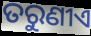
ତରୁଣୀଏ